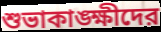
শুভাকাঙ্ক্ষীদের